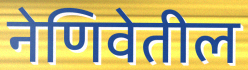
नेणिवेतील